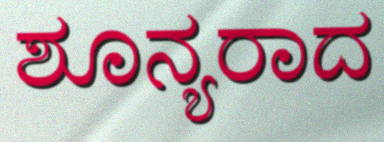
ಶೂನ್ಯರಾದ